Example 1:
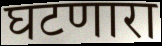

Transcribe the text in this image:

घटणारा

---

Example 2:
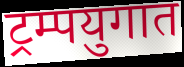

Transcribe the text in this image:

ट्रम्पयुगात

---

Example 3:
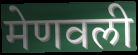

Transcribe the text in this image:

मेणवली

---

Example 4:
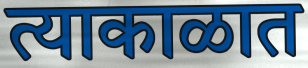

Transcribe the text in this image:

त्याकाळात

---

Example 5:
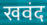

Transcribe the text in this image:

खवंद